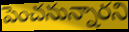
పెంచనున్నారని